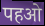
पहओ